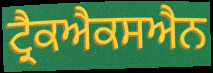
ਟ੍ਰੈਕਐਕਸਐਨ